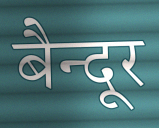
बैन्दूर